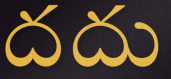
దదు